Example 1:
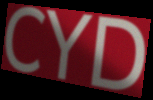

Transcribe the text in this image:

CYD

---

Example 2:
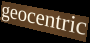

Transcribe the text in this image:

geocentric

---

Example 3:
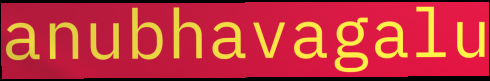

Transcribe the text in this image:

anubhavagalu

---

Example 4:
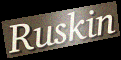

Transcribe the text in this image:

Ruskin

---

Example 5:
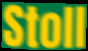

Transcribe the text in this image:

Stoll